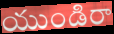
యుండిరా